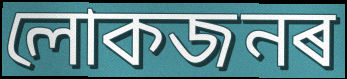
লোকজনৰ